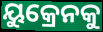
ୟୁକ୍ରେନକୁ